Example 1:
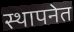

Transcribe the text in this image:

स्थापनेत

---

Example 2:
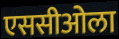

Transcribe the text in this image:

एससीओला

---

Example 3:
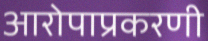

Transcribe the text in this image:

आरोपाप्रकरणी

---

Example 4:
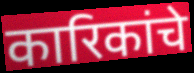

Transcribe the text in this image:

कारिकांचे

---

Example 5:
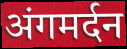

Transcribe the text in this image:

अंगमर्दन